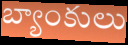
బ్యాంకులు